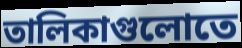
তালিকাগুলোতে